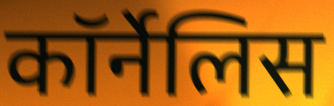
कॉर्नेलिस